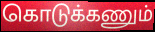
கொடுக்கணும்